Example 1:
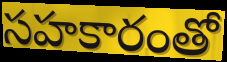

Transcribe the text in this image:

సహకారంతో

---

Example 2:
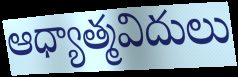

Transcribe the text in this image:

ఆధ్యాత్మవిదులు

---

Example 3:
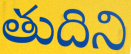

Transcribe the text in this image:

తుదిని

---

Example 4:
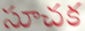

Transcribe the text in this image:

సూచక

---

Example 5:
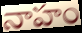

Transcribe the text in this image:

నాహం